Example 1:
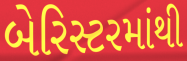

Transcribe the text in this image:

બેરિસ્ટરમાંથી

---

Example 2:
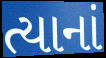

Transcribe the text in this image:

ત્યાનાં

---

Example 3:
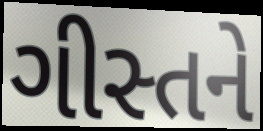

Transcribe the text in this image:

ગીસ્તને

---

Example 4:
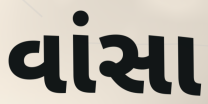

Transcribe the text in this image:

વાંસા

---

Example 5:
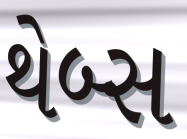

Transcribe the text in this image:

થેબ્સ